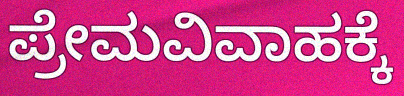
ಪ್ರೇಮವಿವಾಹಕ್ಕೆ